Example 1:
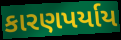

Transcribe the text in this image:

કારણપર્યાય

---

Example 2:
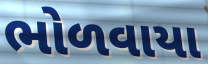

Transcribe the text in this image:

ભોળવાયા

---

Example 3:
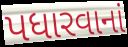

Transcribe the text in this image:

પધારવાનાં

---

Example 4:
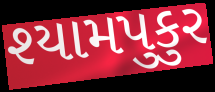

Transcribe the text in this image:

શ્યામપુકુર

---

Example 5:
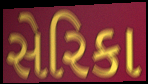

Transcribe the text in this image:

સેરિકા